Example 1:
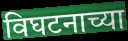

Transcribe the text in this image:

विघटनाच्या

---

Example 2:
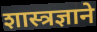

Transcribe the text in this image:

शास्त्रज्ञाने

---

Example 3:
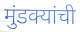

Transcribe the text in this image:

मुंडक्यांची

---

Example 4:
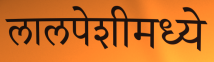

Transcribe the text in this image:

लालपेशीमध्ये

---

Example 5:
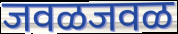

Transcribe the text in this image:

जवळजवळ